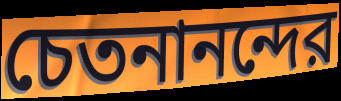
চেতনানন্দের